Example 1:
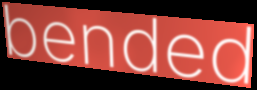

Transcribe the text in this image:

bended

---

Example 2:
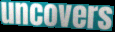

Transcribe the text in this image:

uncovers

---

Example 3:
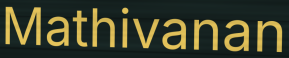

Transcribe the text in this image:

Mathivanan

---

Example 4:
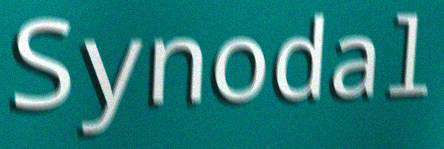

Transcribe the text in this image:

Synodal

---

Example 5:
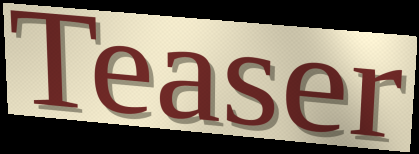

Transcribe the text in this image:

Teaser